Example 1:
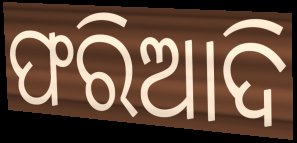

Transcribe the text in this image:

ଫରିଆଦି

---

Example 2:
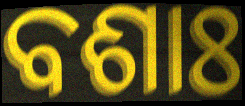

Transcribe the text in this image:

ବଶାଃ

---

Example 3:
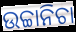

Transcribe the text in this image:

ଉଚ୍ଚାନିଚା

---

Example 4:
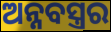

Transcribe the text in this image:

ଅନ୍ନବସ୍ତ୍ରର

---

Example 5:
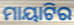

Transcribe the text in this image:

ମାୟାଟିର